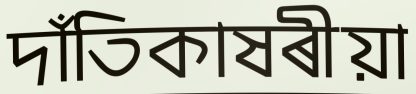
দাঁতিকাষৰীয়া